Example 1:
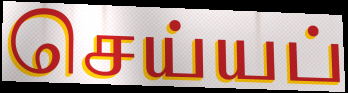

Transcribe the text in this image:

செய்யப்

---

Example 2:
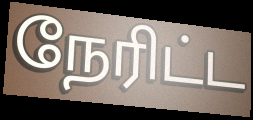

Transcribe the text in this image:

நேரிட்ட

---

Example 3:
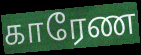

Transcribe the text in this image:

காரேண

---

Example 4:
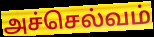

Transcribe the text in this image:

அச்செல்வம்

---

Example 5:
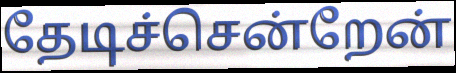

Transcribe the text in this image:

தேடிச்சென்றேன்